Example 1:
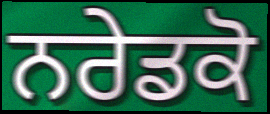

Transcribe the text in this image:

ਨਰੇਡਕੋ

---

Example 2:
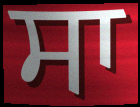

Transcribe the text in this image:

ਸਾ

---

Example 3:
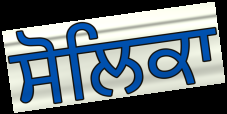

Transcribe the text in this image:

ਸੋਲਿਕਾ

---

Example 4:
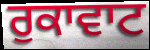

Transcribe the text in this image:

ਰੁਕਾਵਾਟ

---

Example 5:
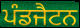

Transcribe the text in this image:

ਪੰਡਜੈਟਨ